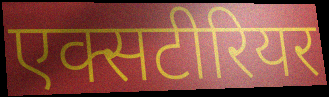
एक्सटीरियर